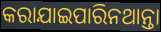
କରାଯାଇପାରିନଥାନ୍ତା